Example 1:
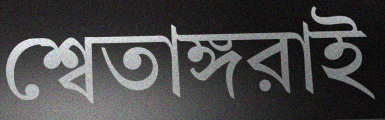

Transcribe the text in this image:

শ্বেতাঙ্গরাই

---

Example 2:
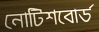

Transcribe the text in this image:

নোটিশবোর্ড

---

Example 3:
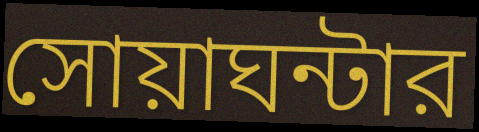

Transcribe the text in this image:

সোয়াঘন্টার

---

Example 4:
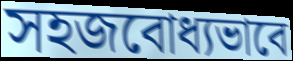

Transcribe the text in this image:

সহজবোধ্যভাবে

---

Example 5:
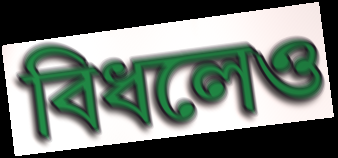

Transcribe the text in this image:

বিধলেও